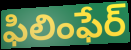
ఫిలింఫేర్